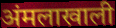
अंमलाखाली